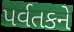
પર્વતકને